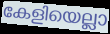
കേളിയെല്ലാ